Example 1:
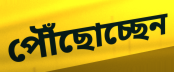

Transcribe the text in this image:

পৌঁছোচ্ছেন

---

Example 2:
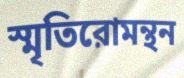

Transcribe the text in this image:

স্মৃতিরোমন্থন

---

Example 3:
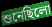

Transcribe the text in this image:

শুনেছিলো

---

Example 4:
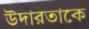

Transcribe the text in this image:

উদারতাকে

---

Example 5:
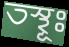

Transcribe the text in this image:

তস্থূঃ